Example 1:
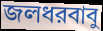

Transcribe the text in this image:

জলধরবাবু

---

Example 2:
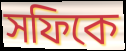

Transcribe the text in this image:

সফিকে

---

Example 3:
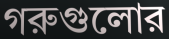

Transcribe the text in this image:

গরুগুলোর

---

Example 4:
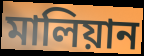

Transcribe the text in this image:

মালিয়ান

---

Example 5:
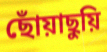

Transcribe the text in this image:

ছোঁয়াছুয়ি